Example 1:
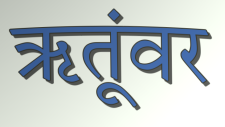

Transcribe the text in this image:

ऋतूंवर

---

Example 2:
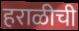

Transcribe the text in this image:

हराळीची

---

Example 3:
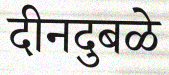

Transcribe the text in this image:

दीनदुबळे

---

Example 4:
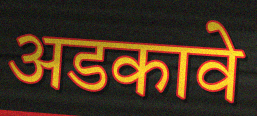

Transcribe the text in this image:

अडकावे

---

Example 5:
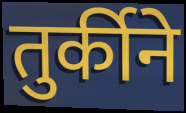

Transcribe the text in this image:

तुर्कीने